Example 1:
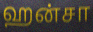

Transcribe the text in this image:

ஹன்சா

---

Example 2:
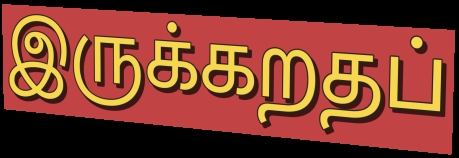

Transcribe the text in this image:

இருக்கறதப்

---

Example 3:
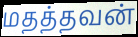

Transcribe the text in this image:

மதத்தவன்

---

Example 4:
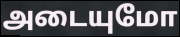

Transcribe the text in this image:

அடையுமோ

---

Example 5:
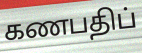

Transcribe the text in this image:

கணபதிப்